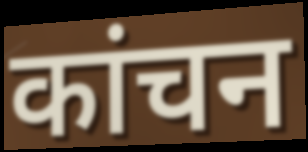
कांचन